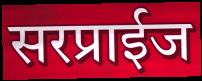
सरप्राईज